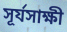
সূর্যসাক্ষী